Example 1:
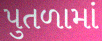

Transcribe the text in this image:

પુતળામાં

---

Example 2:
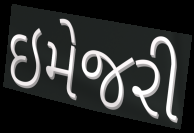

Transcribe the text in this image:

ઇમેજરી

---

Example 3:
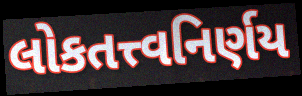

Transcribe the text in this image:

લોકતત્ત્વનિર્ણય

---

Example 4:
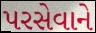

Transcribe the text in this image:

પરસેવાને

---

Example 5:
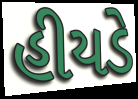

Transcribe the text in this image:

હીયડે